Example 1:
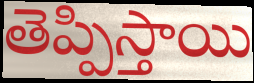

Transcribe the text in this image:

తెప్పిస్తాయి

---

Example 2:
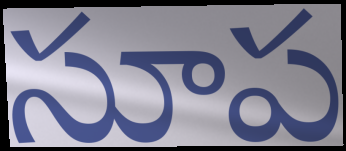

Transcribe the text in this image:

సూప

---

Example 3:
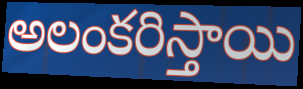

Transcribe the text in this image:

అలంకరిస్తాయి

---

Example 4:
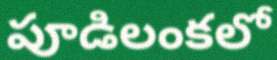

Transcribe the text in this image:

పూడిలంకలో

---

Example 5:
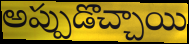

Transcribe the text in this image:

అప్పుడొచ్చాయి